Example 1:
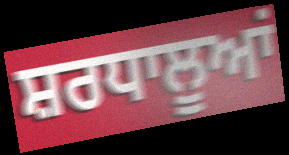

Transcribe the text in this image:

ਸ਼ਰਧਾਲੂਆਂ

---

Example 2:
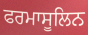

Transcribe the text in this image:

ਫਰਮਾਸੂਲਿਨ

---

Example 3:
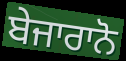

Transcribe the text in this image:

ਬੇਜਾਰਾਨੋ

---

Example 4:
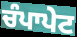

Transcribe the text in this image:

ਚੰਪਾਪੇਟ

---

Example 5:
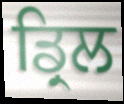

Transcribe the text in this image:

ਡ੍ਰਿਲ